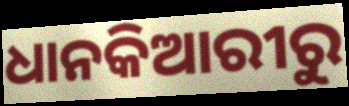
ଧାନକିଆରୀରୁ